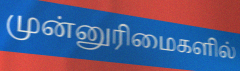
முன்னுரிமைகளில்